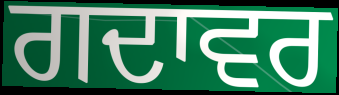
ਗਦਾਵਰ